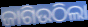
ଜାଗିଉଠିଲା